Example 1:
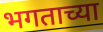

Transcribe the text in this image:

भगताच्या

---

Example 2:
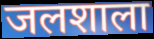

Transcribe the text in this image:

जलशाला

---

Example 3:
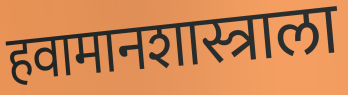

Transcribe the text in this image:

हवामानशास्त्राला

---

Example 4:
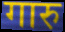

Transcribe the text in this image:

गारु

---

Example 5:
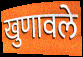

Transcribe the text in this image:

खुणावले